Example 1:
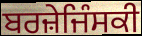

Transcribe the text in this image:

ਬਰਜ਼ੇਜਿੰਸਕੀ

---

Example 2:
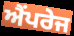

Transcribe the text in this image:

ਐਂਪਰੇਜ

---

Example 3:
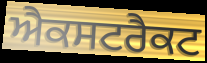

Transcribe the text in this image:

ਐਕਸਟਰੈਕਟ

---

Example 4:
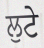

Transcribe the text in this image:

ਲੁਟੇ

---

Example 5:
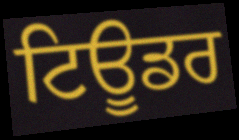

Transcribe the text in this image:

ਟਿਊਡਰ